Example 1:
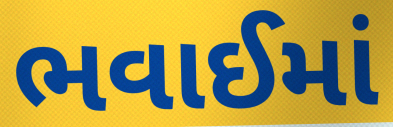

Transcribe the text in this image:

ભવાઈમાં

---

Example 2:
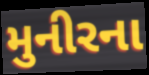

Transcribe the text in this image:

મુનીરના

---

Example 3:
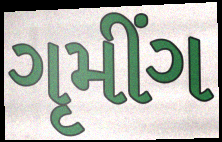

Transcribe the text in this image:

ગૃમીંગ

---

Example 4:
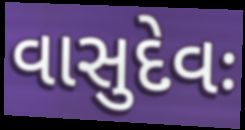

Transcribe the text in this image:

વાસુદેવઃ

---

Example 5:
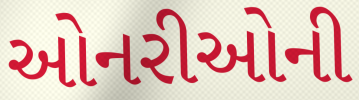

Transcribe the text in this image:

ઓનરીઓની